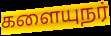
களையுநர்